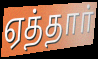
ஏத்தார்